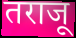
तराजू